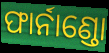
ଫାର୍ନାଣ୍ଡୋ